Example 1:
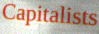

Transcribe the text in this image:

Capitalists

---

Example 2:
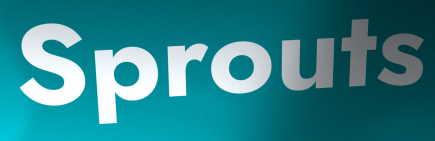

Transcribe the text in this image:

Sprouts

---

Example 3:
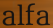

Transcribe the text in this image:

alfa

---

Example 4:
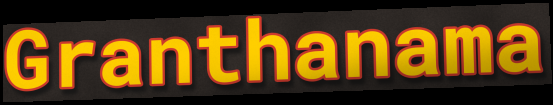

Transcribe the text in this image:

Granthanama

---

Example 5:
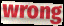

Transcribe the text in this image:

wrong